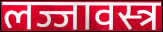
लज्जावस्त्र